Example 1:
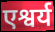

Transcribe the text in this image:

एश्वर्य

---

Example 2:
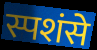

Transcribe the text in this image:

स्पशंसे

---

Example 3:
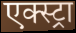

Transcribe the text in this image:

एक्स्ट्रा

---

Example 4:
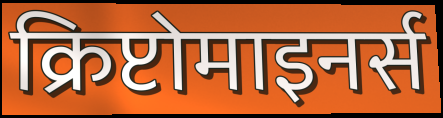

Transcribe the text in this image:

क्रिप्टोमाइनर्स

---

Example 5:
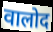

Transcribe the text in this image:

वालोद